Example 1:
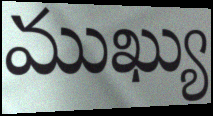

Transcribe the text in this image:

ముఖ్యు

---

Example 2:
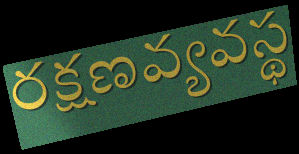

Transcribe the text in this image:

రక్షణవ్యవస్థ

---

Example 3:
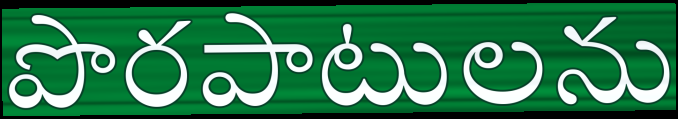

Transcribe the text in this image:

పొరపాటులను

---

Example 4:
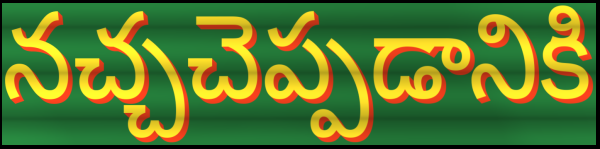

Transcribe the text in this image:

నచ్చచెప్పడానికి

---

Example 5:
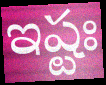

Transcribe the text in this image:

ఇష్టః